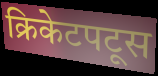
क्रिकेटपटूस